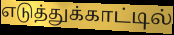
எடுத்துக்காட்டில்